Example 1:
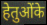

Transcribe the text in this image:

हेतुओंके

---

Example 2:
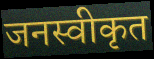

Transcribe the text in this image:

जनस्वीकृत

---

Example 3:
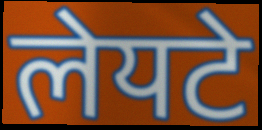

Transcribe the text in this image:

लेयटे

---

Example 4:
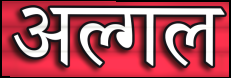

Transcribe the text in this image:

अल्गल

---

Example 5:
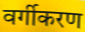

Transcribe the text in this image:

वर्गीकरण